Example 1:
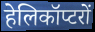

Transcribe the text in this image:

हेलिकॉप्टरों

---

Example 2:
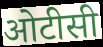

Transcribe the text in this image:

ओटीसी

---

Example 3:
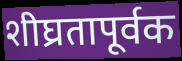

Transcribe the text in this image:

शीघ्रतापूर्वक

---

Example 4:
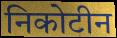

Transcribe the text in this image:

निकोटीन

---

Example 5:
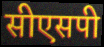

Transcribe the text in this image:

सीएसपी